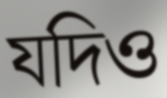
যদিও